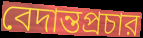
বেদান্তপ্রচার